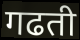
गढती